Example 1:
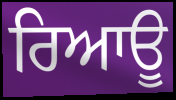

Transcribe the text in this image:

ਰਿਆਊ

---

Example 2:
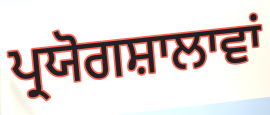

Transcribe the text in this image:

ਪ੍ਰਯੋਗਸ਼ਾਲਾਵਾਂ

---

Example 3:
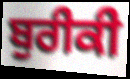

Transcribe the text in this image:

ਬੁਰੀਕੀ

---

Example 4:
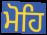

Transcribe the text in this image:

ਮੋਹਿ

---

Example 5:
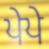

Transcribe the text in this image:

ਪੇਪੇ